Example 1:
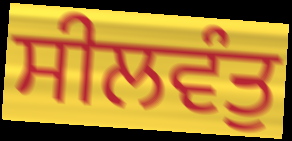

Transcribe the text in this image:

ਸੀਲਵੰਤੁ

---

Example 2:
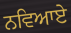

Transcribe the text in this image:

ਨਵਿਆਏ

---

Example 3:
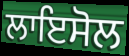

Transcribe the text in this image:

ਲਾਇਸੋਲ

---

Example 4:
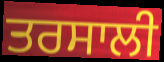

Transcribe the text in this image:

ਤਰਸਾਲੀ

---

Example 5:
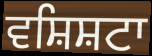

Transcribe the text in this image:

ਵਸ਼ਿਸ਼ਟਾ